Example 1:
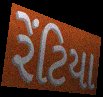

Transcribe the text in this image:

રેંટિયા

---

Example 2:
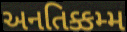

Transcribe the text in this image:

અનતિક્કમ્મ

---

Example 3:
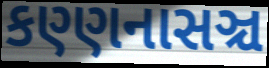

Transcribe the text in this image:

કણ્ણનાસઞ્ચ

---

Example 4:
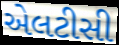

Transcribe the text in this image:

એલટીસી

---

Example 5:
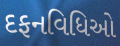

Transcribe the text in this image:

દફનવિધિઓ